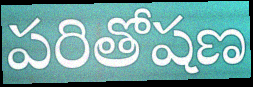
పరితోషణ